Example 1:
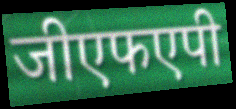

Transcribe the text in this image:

जीएफएपी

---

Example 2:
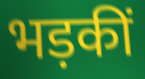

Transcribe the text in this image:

भड़कीं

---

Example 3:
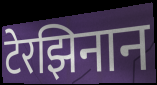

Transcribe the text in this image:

टेरझिनान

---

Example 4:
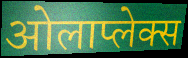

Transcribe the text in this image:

ओलाप्लेक्स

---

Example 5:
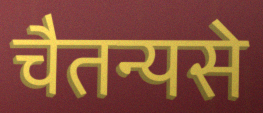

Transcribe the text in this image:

चैतन्यसे